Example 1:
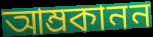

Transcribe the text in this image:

আম্রকানন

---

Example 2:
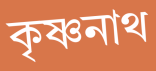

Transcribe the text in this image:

কৃষ্ণনাথ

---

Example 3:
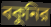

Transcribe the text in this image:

বকুনির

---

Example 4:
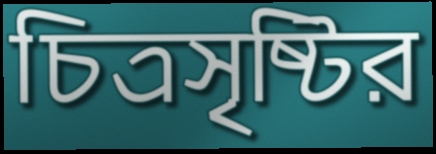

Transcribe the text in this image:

চিত্রসৃষ্টির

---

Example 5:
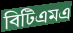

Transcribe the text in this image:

বিটিএমএ